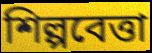
শিল্পবেত্তা